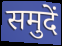
समुदें